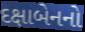
દક્ષાબેનનો